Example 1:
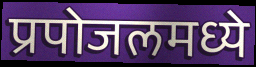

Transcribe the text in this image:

प्रपोजलमध्ये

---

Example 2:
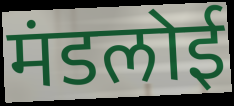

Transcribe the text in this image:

मंडलोई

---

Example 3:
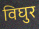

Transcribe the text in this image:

विघुर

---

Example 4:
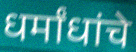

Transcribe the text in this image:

धर्मांधांचे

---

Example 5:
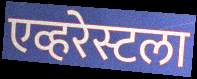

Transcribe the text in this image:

एव्हरेस्टला